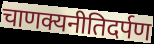
चाणक्यनीतिदर्पण